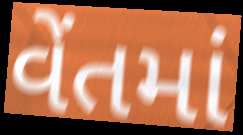
વેંતમાં